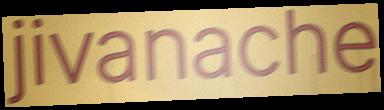
jivanache